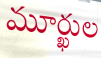
మూర్ఖుల